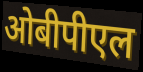
ओबीपीएल